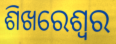
ଶିଖରେଶ୍ୱର